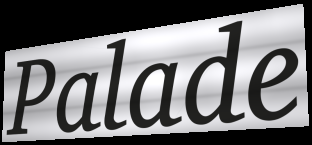
Palade